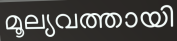
മൂല്യവത്തായി